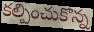
కల్పించుకొన్న